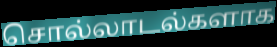
சொல்லாடல்களாக